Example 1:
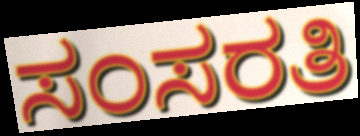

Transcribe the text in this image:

ಸಂಸರತಿ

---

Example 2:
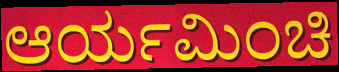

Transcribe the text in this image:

ಆರ್ಯಮಿಂಚಿ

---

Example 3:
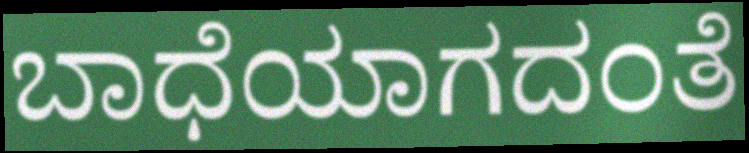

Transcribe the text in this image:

ಬಾಧೆಯಾಗದಂತೆ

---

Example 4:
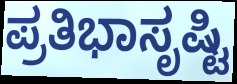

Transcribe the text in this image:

ಪ್ರತಿಭಾಸೃಷ್ಟಿ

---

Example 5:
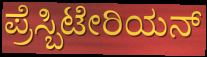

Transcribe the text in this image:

ಪ್ರೆಸ್ಬಿಟೇರಿಯನ್